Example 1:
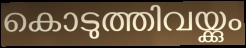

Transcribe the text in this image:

കൊടുത്തിവയ്ക്കും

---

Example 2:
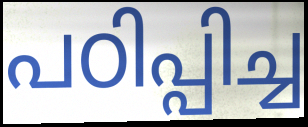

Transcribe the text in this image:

പഠിപ്പിച്ച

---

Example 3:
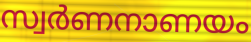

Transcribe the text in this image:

സ്വർണനാണയം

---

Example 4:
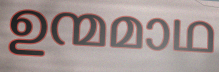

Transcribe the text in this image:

ഉന്മമാഥ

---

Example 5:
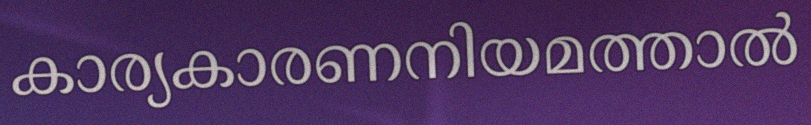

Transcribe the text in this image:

കാര്യകാരണനിയമത്താൽ